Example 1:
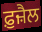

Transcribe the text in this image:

ਫ਼ੁਜ਼ੈਲ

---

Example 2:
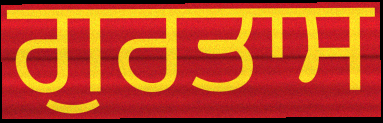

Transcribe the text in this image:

ਗੁਰਤਾਸ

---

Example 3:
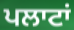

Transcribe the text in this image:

ਪਲਾਟਾਂ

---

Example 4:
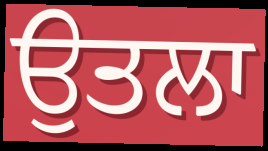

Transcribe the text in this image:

ਉਤਲਾ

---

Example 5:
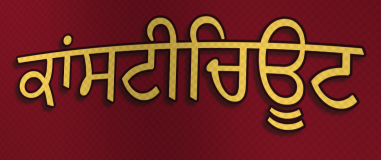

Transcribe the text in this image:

ਕਾਂਸਟੀਚਿਊਟ